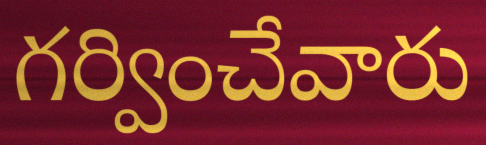
గర్వించేవారు